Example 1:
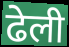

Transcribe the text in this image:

ढेली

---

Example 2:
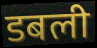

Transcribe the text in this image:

डबली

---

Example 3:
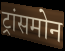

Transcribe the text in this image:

ट्रांसमोन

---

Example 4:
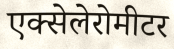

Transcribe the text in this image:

एक्सेलेरोमीटर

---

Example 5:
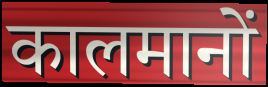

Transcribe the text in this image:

कालमानों